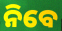
ନିବେ